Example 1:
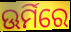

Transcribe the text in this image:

ଊର୍ମିରେ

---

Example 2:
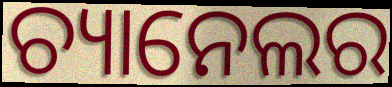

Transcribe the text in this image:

ଚ୍ୟାନେଲର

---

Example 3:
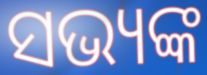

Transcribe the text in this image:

ସଭ୍ୟଙ୍କ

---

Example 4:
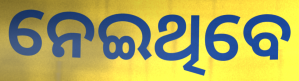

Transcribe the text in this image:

ନେଇଥିବେ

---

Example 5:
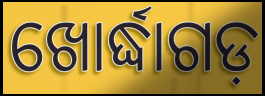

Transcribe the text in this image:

ଖୋର୍ଦ୍ଧାଗଡ଼